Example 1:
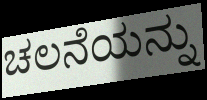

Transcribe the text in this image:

ಚಲನೆಯನ್ನು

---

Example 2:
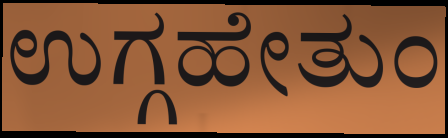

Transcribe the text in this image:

ಉಗ್ಗಹೇತುಂ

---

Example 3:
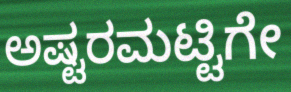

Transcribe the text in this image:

ಅಷ್ಟರಮಟ್ಟಿಗೇ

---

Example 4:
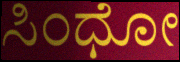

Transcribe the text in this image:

ಸಿಂಧೋ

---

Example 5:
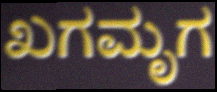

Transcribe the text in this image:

ಖಗಮೃಗ